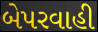
બેપરવાહી